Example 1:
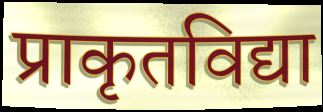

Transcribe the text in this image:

प्राकृतविद्या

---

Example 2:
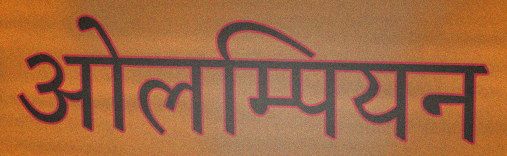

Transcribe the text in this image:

ओलम्पियन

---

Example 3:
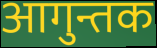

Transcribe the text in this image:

आगुन्तक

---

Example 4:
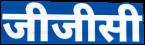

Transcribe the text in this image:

जीजीसी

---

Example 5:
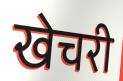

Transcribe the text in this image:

खेचरी